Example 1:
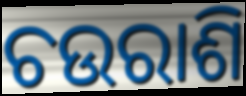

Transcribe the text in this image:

ଚଉରାଶି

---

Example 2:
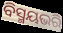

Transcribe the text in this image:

ବିସ୍ମୟଭରି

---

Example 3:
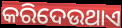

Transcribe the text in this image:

କରିଦେଉଥାଏ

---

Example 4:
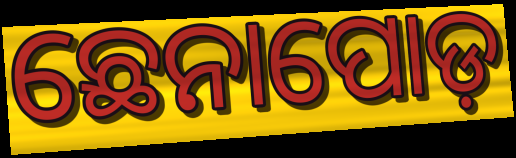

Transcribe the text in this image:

ଛେନାପୋଡ଼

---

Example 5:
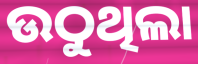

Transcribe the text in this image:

ଉଠୁଥିଲା